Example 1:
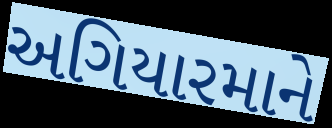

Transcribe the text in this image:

અગિયારમાને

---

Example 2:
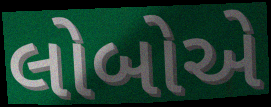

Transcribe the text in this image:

લોબોએ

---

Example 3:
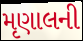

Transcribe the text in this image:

મૃણાલની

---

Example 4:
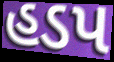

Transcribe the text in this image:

હડપ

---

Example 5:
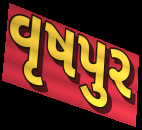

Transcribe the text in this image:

વૃષપુર